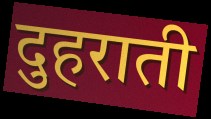
दुहराती